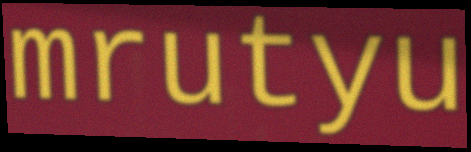
mrutyu